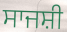
ਸਾਜਸ਼ੀ